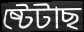
ষ্টেটাছ